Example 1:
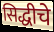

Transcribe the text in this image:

सिद्धीचे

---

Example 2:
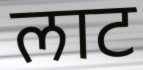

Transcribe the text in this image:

लाट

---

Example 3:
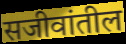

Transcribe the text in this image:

सजीवांतील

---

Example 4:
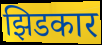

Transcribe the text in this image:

झिडकार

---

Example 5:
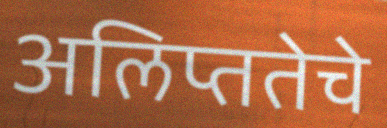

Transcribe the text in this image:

अलिप्ततेचे